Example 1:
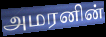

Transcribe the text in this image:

அமரனின்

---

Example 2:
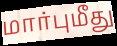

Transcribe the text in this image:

மார்புமீது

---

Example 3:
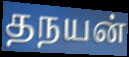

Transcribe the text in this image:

தநயன்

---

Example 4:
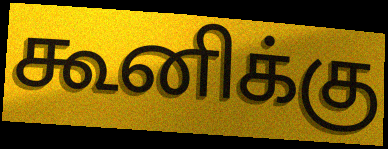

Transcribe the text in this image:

கூனிக்கு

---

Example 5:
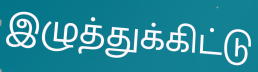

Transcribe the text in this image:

இழுத்துக்கிட்டு